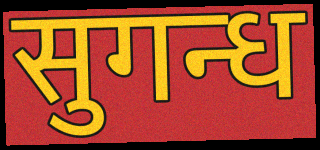
सुगन्ध